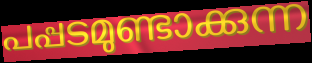
പപ്പടമുണ്ടാക്കുന്ന